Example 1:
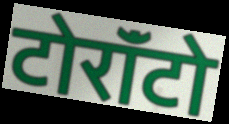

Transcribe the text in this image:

टोरॉंटो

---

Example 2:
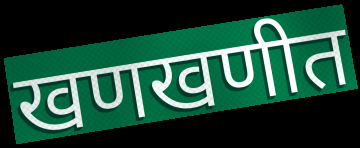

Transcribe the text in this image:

खणखणीत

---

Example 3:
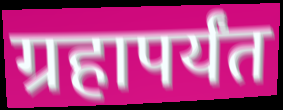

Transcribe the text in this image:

ग्रहापर्यंत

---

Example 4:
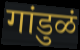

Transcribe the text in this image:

गांडुळं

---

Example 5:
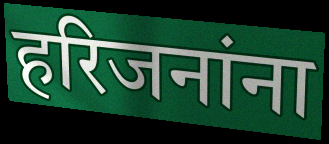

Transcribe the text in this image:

हरिजनांना